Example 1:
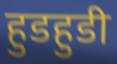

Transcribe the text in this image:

हुडहुडी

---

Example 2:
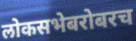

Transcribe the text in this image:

लोकसभेबरोबरच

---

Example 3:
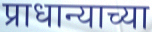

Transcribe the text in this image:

प्राधान्याच्या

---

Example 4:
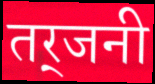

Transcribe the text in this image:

तर्जनी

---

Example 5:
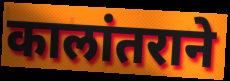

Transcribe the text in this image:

कालांतराने